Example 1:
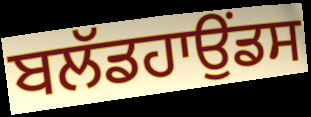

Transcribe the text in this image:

ਬਲੱਡਹਾਉਂਡਸ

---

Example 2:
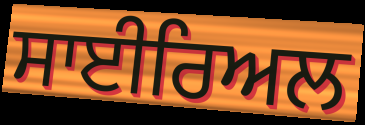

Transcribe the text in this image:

ਸਾਈਰਿਅਲ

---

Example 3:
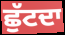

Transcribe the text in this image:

ਛੁੱਟਦਾ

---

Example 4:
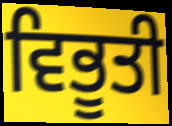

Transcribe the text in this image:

ਵਿਭੂਤੀ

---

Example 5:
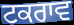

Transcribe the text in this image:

ਟਕਰਾਵ